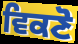
ਵਿਕਣੋ